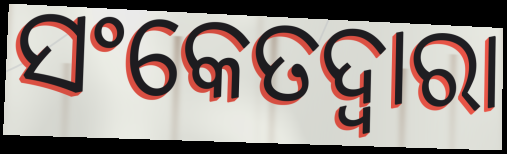
ସଂକେତଦ୍ଵାରା